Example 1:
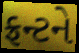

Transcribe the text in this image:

ફ્રન્ટને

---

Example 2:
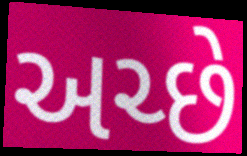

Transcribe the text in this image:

અચ્છે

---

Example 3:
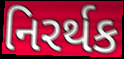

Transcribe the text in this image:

નિરર્થક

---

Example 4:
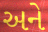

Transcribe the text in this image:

અને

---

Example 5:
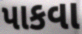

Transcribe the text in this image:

પાકવા